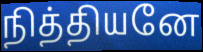
நித்தியனே